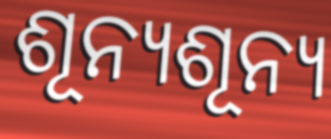
ଶୂନ୍ୟଶୂନ୍ୟ